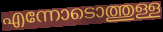
എന്നോടൊത്തുള്ള